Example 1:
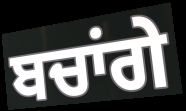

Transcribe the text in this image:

ਬਚਾਂਗੇ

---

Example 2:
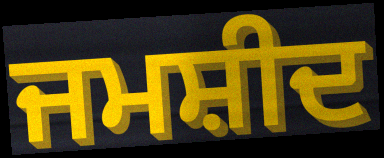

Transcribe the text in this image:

ਜਮਸ਼ੀਦ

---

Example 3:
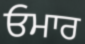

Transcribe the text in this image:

ਓਮਾਰ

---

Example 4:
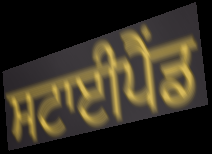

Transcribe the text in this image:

ਸਟਾਈਪੈਂਡ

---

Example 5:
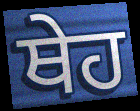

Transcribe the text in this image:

ਥੇਹ